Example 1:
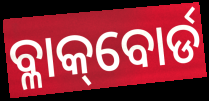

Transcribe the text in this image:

ବ୍ଳାକ୍‌ବୋର୍ଡ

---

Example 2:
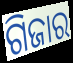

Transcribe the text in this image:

ଗିଜାର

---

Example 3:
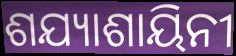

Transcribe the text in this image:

ଶଯ୍ୟାଶାୟିନୀ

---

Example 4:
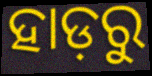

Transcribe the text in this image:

ହାଡ଼ରୁ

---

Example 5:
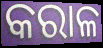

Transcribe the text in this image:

କରାଳ